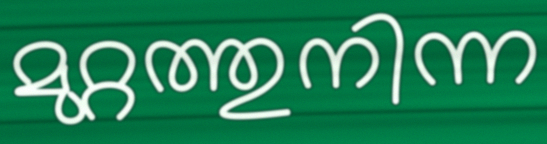
മുറ്റത്തുനിന്ന